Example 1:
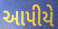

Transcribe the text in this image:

આપીયે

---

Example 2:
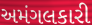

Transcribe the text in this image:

અમંગલકારી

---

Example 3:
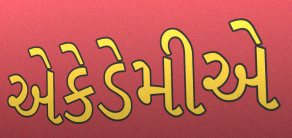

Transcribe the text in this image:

એકેડેમીએ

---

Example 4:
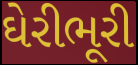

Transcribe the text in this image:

ઘેરીભૂરી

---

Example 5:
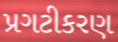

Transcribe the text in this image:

પ્રગટીકરણ